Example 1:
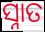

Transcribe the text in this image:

ସ୍ନାତ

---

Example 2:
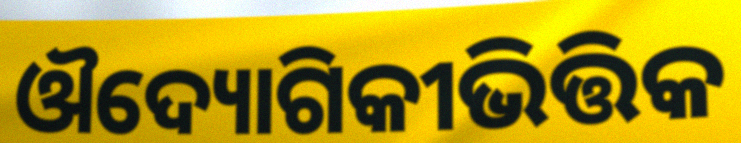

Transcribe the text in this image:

ଔଦ୍ୟୋଗିକୀଭିତ୍ତିକ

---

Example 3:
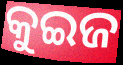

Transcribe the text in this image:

କୁଇଜ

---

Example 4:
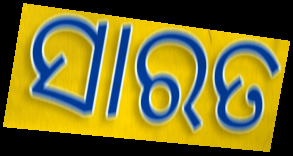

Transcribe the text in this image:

ସାରତ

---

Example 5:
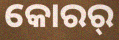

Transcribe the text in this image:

କୋରର୍